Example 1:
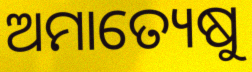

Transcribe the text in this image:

ଅମାତ୍ୟେଷୁ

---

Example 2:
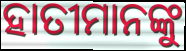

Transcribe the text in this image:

ହାତୀମାନଙ୍କୁ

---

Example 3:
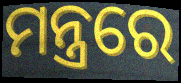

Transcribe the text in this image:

ମନ୍ତ୍ରରେ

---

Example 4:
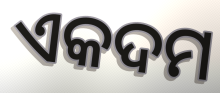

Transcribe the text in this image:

ଏକଦମ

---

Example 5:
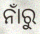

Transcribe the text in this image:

ନାଁରୁ